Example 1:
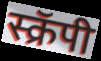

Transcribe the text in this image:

स्क्रॅपी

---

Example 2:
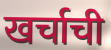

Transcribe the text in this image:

खर्चाची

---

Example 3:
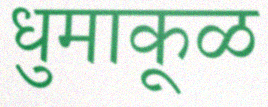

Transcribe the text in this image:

धुमाकूळ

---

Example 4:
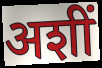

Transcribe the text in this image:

अशीं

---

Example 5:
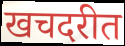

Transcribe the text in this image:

खचदरीत